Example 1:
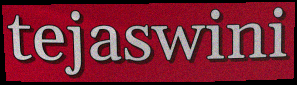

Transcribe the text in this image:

tejaswini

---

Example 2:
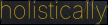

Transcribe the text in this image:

holistically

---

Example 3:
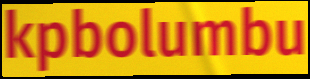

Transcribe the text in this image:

kpbolumbu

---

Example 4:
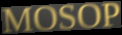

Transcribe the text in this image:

MOSOP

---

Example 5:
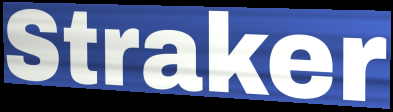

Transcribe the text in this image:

Straker